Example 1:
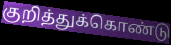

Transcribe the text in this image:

குறித்துக்கொண்டு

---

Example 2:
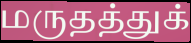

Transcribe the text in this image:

மருதத்துக்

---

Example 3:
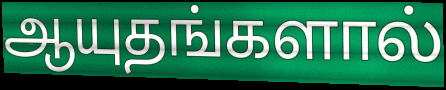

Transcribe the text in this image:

ஆயுதங்களால்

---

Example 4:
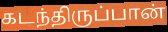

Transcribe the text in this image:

கடந்திருப்பான்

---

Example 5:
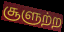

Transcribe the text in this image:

சூளுற்ற